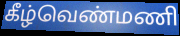
கீழ்வெண்மணி